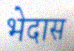
भेदास